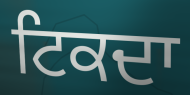
ਟਿਕਦਾ